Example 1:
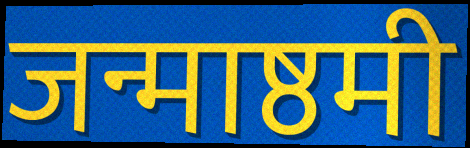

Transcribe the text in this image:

जन्माष्ठमी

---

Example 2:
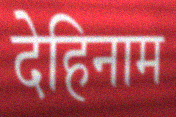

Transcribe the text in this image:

देहिनाम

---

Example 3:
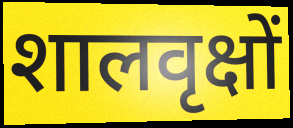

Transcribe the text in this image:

शालवृक्षों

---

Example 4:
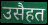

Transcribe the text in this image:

उसैहत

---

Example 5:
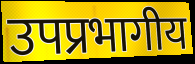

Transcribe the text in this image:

उपप्रभागीय